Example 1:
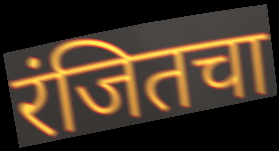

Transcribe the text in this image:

रंजितचा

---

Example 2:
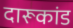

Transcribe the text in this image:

दारूकांड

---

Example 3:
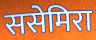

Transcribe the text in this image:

ससेमिरा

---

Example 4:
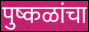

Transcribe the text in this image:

पुष्कळांचा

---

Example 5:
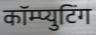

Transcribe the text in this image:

कॉम्प्युटिंग